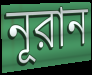
নূরান